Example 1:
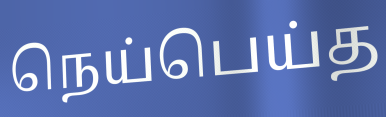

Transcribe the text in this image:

நெய்பெய்த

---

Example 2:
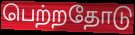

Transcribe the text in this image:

பெற்றதோடு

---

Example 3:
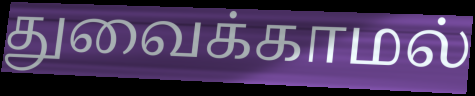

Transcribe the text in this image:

துவைக்காமல்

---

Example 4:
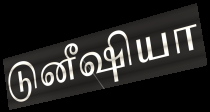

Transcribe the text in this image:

டுனீஷியா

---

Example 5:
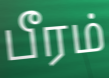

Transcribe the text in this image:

பீரம்